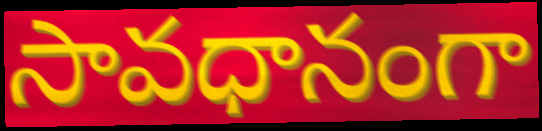
సావధానంగా